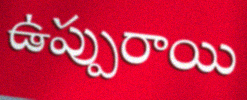
ఉప్పురాయి